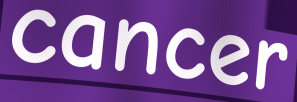
cancer